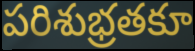
పరిశుభ్రతకూ